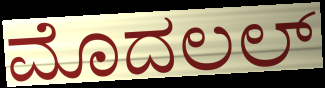
ಮೊದಲಲ್